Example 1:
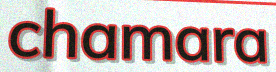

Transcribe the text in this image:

chamara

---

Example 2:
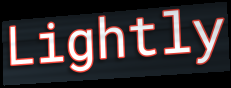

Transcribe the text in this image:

Lightly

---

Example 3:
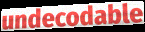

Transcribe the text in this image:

undecodable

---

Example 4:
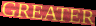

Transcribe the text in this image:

GREATER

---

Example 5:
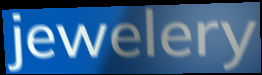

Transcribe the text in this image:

jewelery